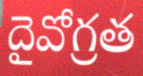
దైవోగ్రత